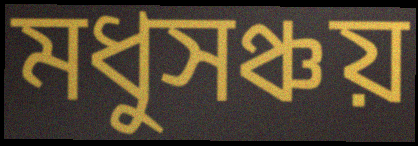
মধুসঞ্চয়